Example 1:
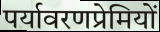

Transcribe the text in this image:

पर्यावरणप्रेमियों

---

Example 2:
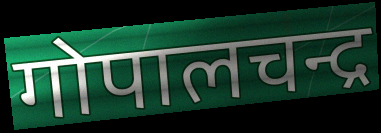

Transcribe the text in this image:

गोपालचन्द्र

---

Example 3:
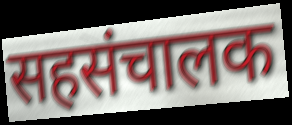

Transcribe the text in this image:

सहसंचालक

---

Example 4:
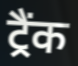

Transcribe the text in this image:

ट्रैंक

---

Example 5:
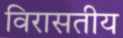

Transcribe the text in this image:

विरासतीय